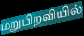
மறுபிறவியில்